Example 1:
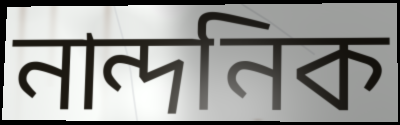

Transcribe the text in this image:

নান্দনিক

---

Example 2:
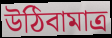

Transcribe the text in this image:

উঠিবামাত্র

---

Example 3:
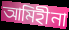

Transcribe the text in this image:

আমিহীনা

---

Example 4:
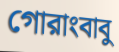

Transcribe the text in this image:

গোরাংবাবু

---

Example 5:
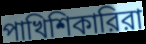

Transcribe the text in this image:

পাখিশিকারিরা